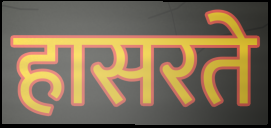
हासरते